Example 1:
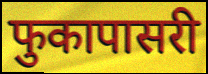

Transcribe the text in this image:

फुकापासरी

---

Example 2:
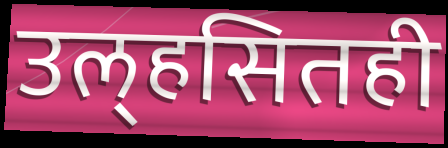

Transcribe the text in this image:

उल्हसितही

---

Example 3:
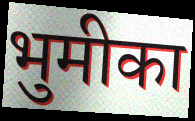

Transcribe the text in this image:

भुमीका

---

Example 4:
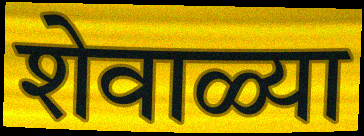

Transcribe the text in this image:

शेवाळ्या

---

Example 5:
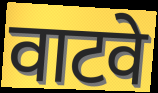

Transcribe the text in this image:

वाटवे